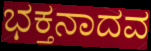
ಭಕ್ತನಾದವ